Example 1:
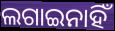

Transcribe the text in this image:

ଲଗାଇନାହିଁ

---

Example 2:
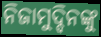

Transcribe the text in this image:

ନିଜାମୁଦ୍ଦିନଙ୍କୁ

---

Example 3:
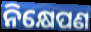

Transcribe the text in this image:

ନିକ୍ଷେପଣ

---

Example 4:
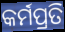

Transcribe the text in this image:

କର୍ମପ୍ରତି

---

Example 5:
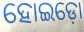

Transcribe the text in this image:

ହୋଇଡ଼ୋ